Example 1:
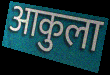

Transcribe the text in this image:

आकुला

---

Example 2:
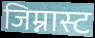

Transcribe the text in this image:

जिम्नास्ट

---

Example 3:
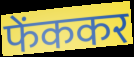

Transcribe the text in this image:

फेंककर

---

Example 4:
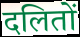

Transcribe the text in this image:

दलितों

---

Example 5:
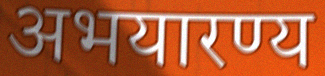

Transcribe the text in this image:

अभयारण्य